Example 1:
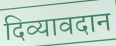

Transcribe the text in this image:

दिव्यावदान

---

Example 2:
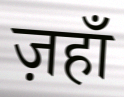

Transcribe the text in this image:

ज़हाँ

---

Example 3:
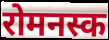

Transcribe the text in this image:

रोमनस्क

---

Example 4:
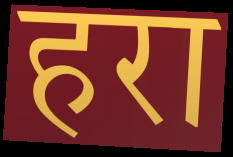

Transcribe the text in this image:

हरा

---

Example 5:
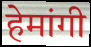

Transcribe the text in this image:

हेमांगी